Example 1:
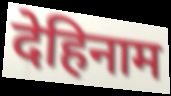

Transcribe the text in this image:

देहिनाम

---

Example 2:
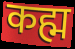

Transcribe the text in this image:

कह्म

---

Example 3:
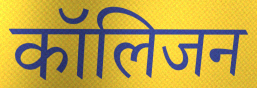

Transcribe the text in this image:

कॉलिजन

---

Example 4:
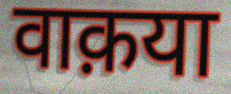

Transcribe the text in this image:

वाक़या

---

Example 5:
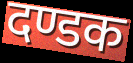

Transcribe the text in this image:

दण्डक